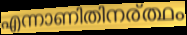
എന്നാണിതിനര്ത്ഥം